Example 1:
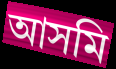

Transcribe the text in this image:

আসমি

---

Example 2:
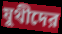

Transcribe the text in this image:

যুথীদের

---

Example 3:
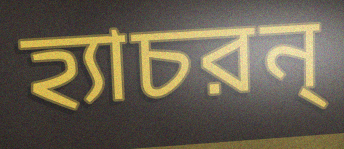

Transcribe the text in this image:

হ্যাচরন্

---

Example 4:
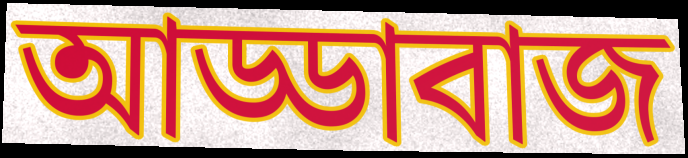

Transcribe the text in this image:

আড্ডাবাজ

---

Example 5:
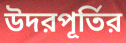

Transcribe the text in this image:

উদরপূর্তির